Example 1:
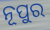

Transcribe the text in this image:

ନୂପୁର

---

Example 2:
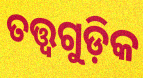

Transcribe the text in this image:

ତତ୍ତ୍ବଗୁଡ଼ିକ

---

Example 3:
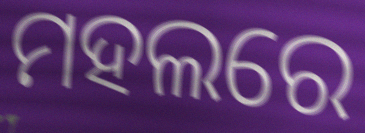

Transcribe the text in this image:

ମହଲରେ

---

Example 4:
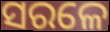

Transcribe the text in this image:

ସରଳେ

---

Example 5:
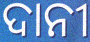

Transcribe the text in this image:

ଦାନୀ